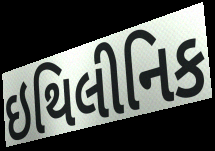
ઇથિલીનિક